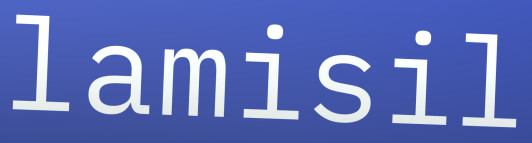
lamisil